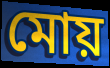
মোয়